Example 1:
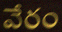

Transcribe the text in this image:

వేరం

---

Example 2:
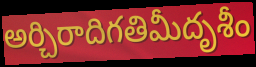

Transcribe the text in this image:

అర్చిరాదిగతిమీదృశీం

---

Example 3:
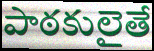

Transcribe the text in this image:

పాఠకులైతే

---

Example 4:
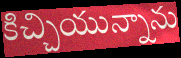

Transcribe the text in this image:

కిచ్చియున్నాను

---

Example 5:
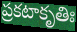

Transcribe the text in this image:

ప్రకటాకృతిః